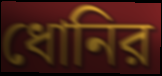
ধোনির